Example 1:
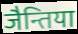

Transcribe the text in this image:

जैन्तिया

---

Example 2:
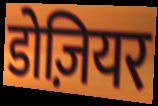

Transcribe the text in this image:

डोज़ियर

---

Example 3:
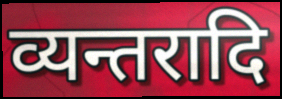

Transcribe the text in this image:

व्यन्तरादि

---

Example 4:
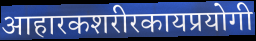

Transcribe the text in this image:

आहारकशरीरकायप्रयोगी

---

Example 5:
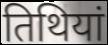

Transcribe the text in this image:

तिथियां